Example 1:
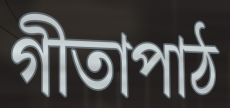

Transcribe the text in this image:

গীতাপাঠ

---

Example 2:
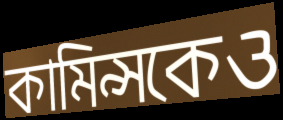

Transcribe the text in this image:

কামিন্সকেও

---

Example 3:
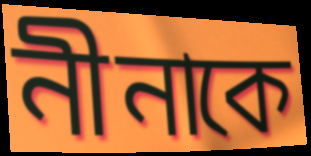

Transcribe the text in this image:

নীনাকে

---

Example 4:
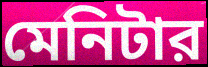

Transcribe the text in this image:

মেনিটার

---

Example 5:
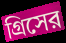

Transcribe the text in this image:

গ্রিসের